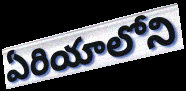
ఏరియాలోని